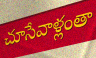
చూసేవాళ్లంతా